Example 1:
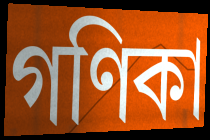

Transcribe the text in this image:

গণিকা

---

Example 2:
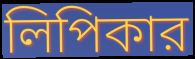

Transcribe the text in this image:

লিপিকার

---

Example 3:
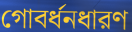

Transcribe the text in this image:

গোবর্ধনধারণ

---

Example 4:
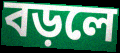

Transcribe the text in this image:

বড়লে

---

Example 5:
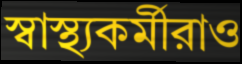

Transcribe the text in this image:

স্বাস্থ্যকর্মীরাও